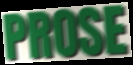
PROSE